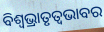
ବିଶ୍ଵଭ୍ରାତୃତ୍ୱଭାବର